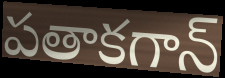
పతాకగాన్